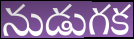
నుడుగక